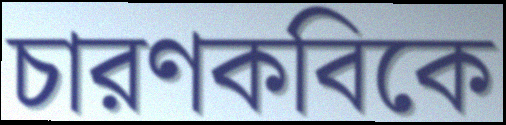
চারণকবিকে